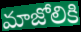
మాజోలికి